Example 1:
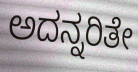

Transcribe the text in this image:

ಅದನ್ನರಿತೇ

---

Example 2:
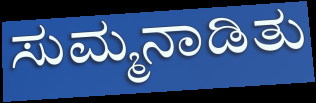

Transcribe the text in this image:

ಸುಮ್ಮನಾಡಿತು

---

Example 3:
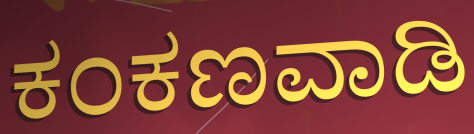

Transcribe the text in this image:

ಕಂಕಣವಾಡಿ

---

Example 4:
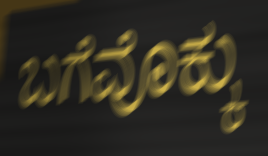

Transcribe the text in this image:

ಬಗೆವೊಕ್ಕು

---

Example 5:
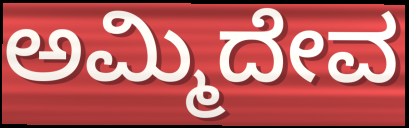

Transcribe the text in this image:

ಅಮ್ಮಿದೇವ